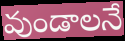
వుండాలనే